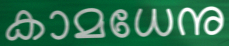
കാമധേനു